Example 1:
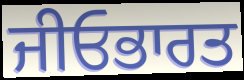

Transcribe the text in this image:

ਜੀਓਭਾਰਤ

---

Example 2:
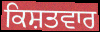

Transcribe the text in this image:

ਕਿਸ਼ਤਵਾਰ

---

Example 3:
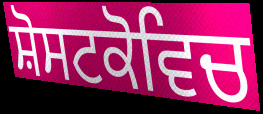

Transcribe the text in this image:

ਸ਼ੋਸਟਕੋਵਿਚ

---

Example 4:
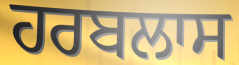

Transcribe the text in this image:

ਹਰਬਲਾਸ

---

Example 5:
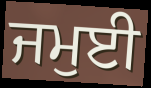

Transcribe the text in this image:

ਜਮੁਈ